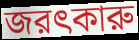
জরৎকারু